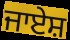
ਜਾਏਸ਼